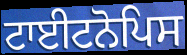
ਟਾਈਟਨੋਪਿਸ